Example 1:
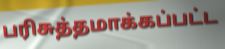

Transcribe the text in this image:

பரிசுத்தமாக்கப்பட்ட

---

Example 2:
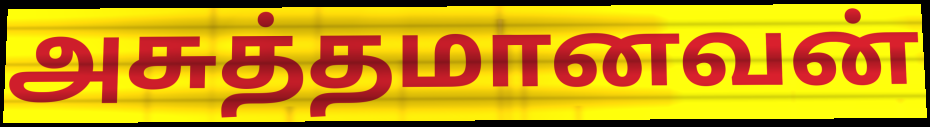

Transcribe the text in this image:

அசுத்தமானவன்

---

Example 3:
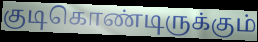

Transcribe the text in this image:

குடிகொண்டிருக்கும்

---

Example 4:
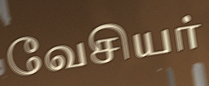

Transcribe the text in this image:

வேசியர்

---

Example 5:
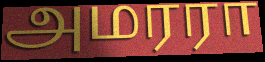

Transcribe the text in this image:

அமரரா